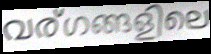
വര്ഗങ്ങളിലെ